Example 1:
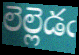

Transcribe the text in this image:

లెల్లెడఁ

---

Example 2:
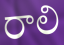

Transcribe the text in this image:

రాలి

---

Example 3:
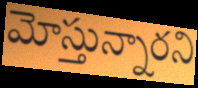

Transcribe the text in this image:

మోస్తున్నారని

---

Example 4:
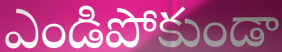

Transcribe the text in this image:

ఎండిపోకుండా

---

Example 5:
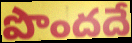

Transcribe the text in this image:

పొందదే